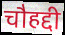
चौहद्दी